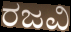
ರಜವಿ